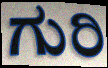
ಗುರಿ